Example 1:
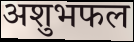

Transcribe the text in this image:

अशुभफल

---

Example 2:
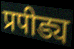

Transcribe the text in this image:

प्रपीड्य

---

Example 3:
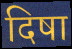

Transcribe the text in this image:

दिषा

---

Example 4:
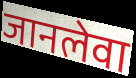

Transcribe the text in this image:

जानलेवा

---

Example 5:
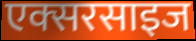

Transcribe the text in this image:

एक्‍सरसाइज